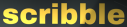
scribble